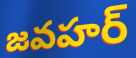
జవహర్